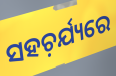
ସହଚ଼ର୍ଯ୍ୟରେ